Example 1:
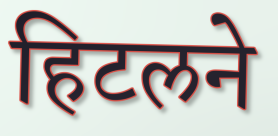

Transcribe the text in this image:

हिटलने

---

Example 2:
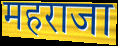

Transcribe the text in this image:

महराजा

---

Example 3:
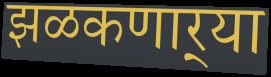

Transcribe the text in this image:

झळकणार्या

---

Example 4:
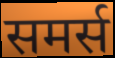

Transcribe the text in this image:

समर्स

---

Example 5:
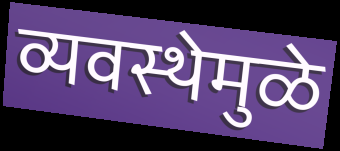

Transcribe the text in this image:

व्यवस्थेमुळे